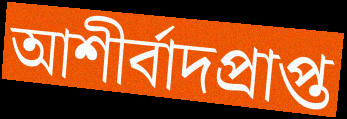
আশীর্বাদপ্রাপ্ত